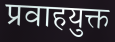
प्रवाहयुक्त